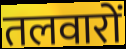
तलवारों